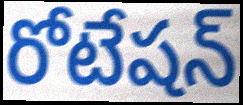
రోటేషన్